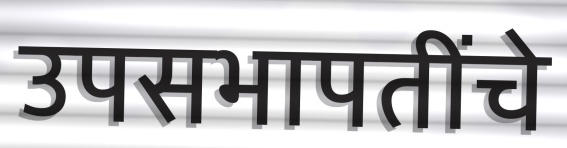
उपसभापतींचे